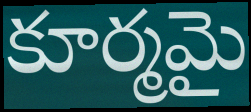
కూర్మమై